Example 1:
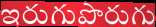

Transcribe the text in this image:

ఇరుగుపొరుగు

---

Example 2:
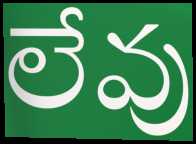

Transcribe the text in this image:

లేవు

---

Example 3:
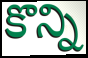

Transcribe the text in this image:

కొన్ని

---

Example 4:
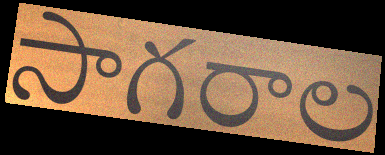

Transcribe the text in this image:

సాగరాల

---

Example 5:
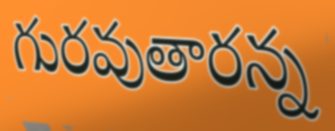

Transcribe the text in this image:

గురవుతారన్న